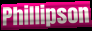
Phillipson